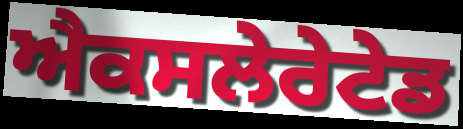
ਐਕਸਲੇਰੇਟੇਡ